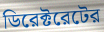
ডিরেক্টরেটের